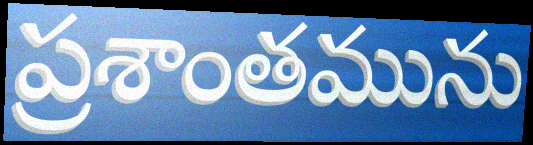
ప్రశాంతమును